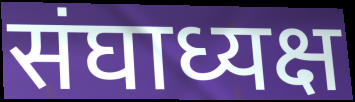
संघाध्यक्ष